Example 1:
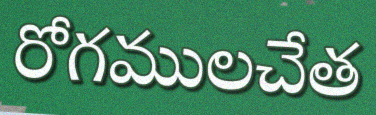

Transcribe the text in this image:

రోగములచేత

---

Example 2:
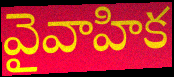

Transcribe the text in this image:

వైవాహిక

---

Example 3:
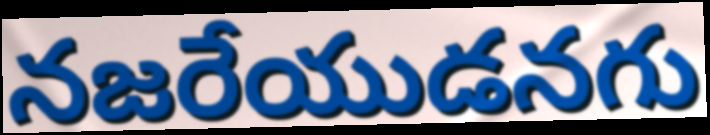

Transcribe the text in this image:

నజరేయుడనగు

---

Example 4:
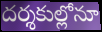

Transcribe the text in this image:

దర్శకుల్లోనూ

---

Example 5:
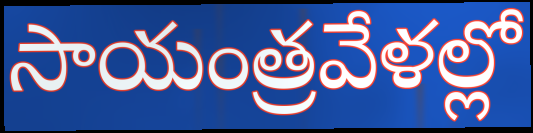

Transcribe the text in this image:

సాయంత్రవేళల్లో